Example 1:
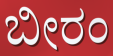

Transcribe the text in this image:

ಬೀರಂ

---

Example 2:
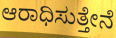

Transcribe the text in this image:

ಆರಾಧಿಸುತ್ತೇನೆ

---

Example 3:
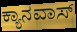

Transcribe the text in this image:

ಕ್ಯಾನವಾಸ್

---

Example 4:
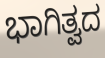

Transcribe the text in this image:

ಭಾಗಿತ್ವದ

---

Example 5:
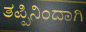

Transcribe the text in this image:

ತಪ್ಪಿನಿಂದಾಗಿ